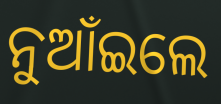
ନୁଆଁଇଲେ